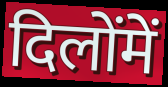
दिलोंमें